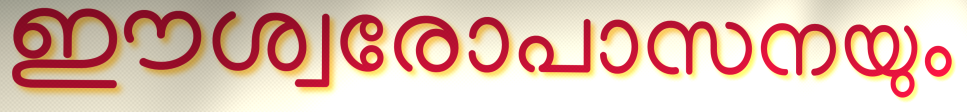
ഈശ്വരോപാസനയും